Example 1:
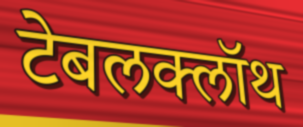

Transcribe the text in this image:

टेबलक्लॉथ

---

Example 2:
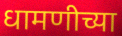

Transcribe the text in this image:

धामणीच्या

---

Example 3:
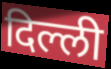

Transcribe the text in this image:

दिल्‍ली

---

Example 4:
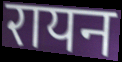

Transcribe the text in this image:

रायन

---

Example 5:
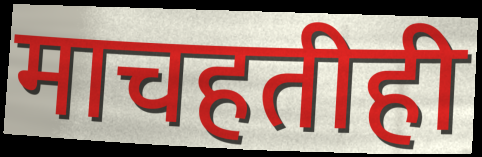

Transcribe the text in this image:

माचहतीही